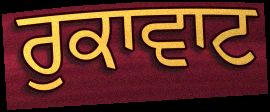
ਰੁਕਾਵਾਟ